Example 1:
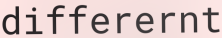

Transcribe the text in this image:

differernt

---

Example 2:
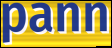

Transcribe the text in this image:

pann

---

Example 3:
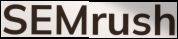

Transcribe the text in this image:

SEMrush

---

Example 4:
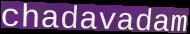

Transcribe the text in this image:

chadavadam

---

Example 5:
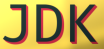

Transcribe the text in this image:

JDK